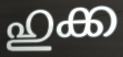
ഹുക്ക